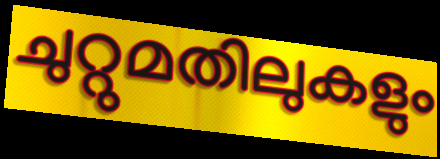
ചുറ്റുമതിലുകളും